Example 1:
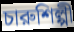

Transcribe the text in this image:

চারুশিল্পী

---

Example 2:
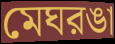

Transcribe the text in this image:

মেঘরঙা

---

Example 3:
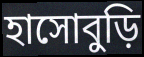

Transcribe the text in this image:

হাসোবুড়ি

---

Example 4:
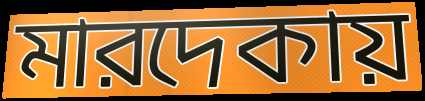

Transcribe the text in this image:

মারদেকায়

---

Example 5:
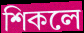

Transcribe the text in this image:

শিকলে